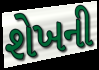
શેખની